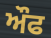
ਔਫ